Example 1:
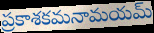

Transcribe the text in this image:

ప్రకాశకమనామయమ్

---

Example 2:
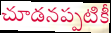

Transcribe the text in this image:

చూడనప్పటికీ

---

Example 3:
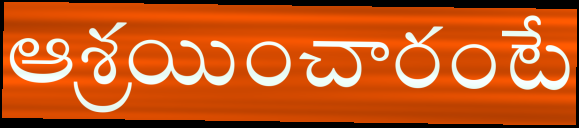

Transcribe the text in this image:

ఆశ్రయించారంటే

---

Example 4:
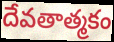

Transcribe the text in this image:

దేవతాత్మకం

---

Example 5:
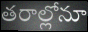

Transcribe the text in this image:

తరాల్లోనూ